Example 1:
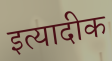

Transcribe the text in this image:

इत्यादीक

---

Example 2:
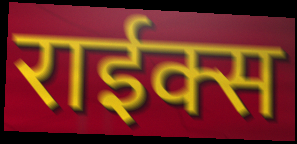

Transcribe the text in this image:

राईक्स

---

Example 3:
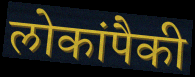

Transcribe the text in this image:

लोकांपैकी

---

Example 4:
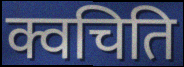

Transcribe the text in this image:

क्वचिति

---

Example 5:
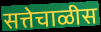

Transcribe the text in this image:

सत्तेचाळीस